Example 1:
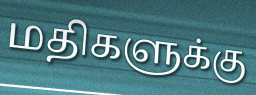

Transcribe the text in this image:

மதிகளுக்கு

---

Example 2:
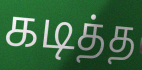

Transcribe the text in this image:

கடித்த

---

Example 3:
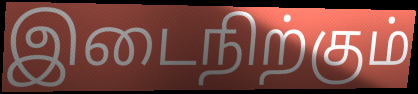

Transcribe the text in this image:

இடைநிற்கும்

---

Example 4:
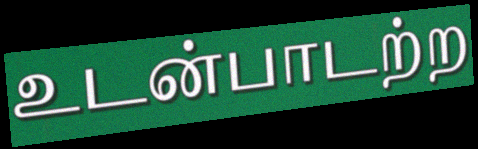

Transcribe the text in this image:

உடன்பாடற்ற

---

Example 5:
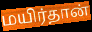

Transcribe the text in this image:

மயிர்தான்